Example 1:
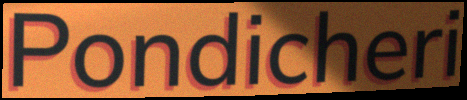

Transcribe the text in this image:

Pondicheri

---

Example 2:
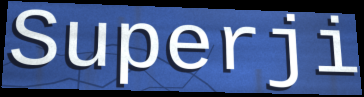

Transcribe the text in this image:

Superji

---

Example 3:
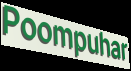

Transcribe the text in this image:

Poompuhar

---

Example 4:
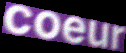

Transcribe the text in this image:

coeur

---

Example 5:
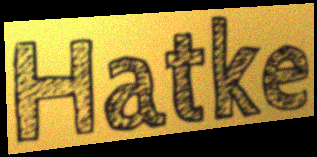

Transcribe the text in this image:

Hatke